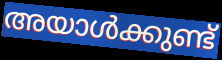
അയാൾക്കുണ്ട്